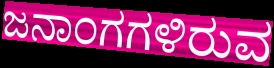
ಜನಾಂಗಗಳಿರುವ